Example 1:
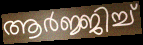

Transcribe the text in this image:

ആർജ്ജിച്ച്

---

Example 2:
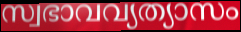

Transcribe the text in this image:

സ്വഭാവവ്യത്യാസം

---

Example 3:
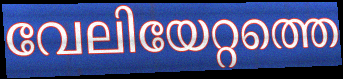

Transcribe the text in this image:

വേലിയേറ്റത്തെ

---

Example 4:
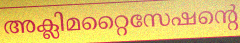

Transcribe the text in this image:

അക്ലിമറ്റൈസേഷന്റെ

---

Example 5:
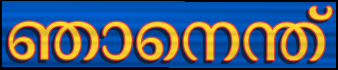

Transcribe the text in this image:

ഞാനെന്ത്